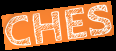
CHES